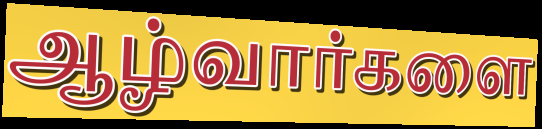
ஆழ்வார்களை